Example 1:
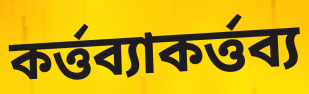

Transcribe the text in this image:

কর্ত্তব্যাকর্ত্তব্য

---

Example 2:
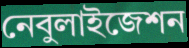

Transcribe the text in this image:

নেবুলাইজেশন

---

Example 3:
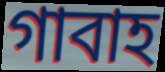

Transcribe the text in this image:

গাবাহ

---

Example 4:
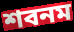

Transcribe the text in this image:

শবনম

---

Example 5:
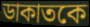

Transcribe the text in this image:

ডাকাতকে